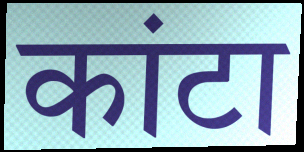
कांटा